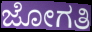
ಜೋಗತಿ